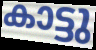
കാട്ടു